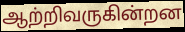
ஆற்றிவருகின்றன